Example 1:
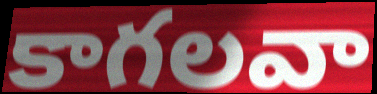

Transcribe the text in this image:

కాగలవా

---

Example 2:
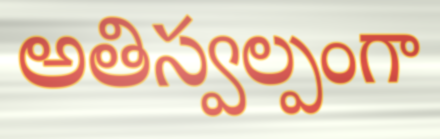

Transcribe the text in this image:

అతిస్వల్పంగా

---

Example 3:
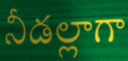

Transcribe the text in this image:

నీడల్లాగా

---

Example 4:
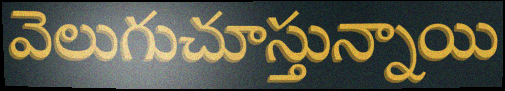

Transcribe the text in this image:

వెలుగుచూస్తున్నాయి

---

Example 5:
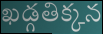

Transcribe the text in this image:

ఖడ్గతిక్కన